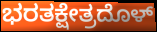
ಭರತಕ್ಷೇತ್ರದೊಳ್